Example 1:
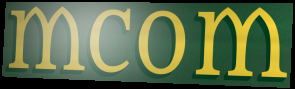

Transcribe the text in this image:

mcom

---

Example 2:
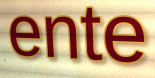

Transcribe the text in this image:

ente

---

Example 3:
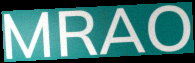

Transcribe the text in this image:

MRAO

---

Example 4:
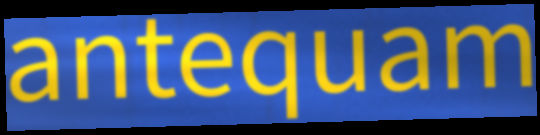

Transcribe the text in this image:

antequam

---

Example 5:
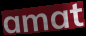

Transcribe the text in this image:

amat